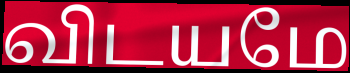
விடயமே